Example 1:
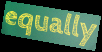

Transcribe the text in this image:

equally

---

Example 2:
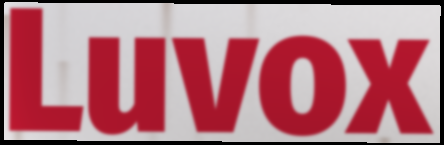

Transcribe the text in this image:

Luvox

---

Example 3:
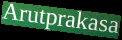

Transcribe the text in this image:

Arutprakasa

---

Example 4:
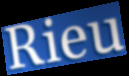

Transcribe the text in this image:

Rieu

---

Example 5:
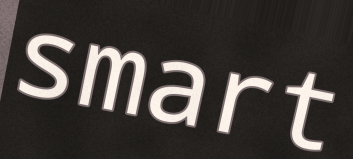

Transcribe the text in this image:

smart